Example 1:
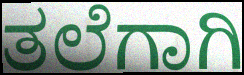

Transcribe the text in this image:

ತಲೆಗಾಗಿ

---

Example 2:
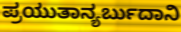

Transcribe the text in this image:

ಪ್ರಯುತಾನ್ಯರ್ಬುದಾನಿ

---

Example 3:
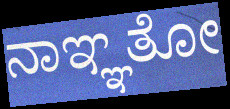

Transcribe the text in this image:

ನಾಞ್ಞತೋ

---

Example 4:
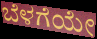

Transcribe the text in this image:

ಬೆಳಗೆಯೇ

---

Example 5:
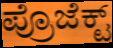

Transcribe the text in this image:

ಪ್ರೊಜೆಕ್ಟ್